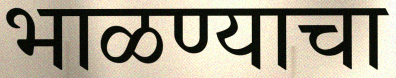
भाळण्याचा